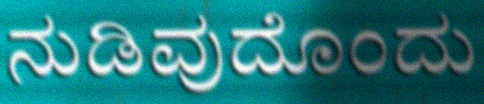
ನುಡಿವುದೊಂದು